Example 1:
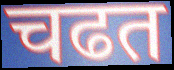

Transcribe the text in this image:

चढत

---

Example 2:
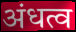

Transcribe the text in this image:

अंधत्व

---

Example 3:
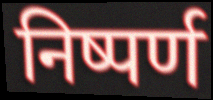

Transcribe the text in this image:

निष्पर्ण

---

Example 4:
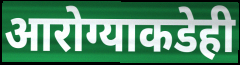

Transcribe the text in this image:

आरोग्याकडेही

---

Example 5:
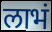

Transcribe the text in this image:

लाभं